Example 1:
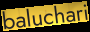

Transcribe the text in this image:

baluchari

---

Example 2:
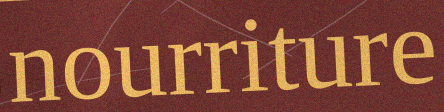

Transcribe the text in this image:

nourriture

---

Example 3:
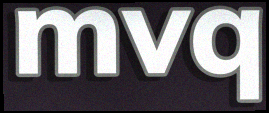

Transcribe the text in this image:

mvq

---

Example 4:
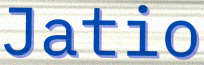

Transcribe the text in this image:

Jatio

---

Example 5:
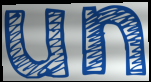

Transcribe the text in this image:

un